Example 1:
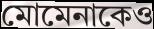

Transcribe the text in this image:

মোমেনাকেও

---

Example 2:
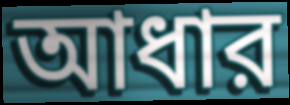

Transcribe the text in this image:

আধার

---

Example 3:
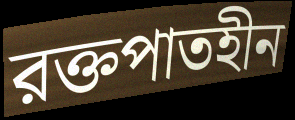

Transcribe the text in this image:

রক্তপাতহীন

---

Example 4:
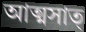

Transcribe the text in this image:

আত্মসাত্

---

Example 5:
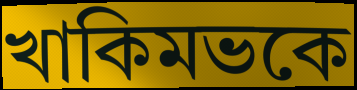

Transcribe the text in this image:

খাকিমভকে